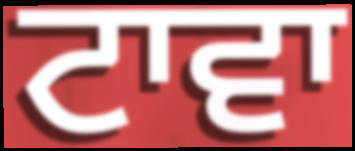
ਟਾਵਾ